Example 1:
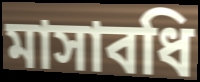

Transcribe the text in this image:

মাসাবধি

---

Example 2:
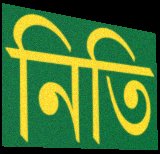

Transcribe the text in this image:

নিতি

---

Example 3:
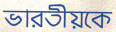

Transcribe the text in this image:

ভারতীয়কে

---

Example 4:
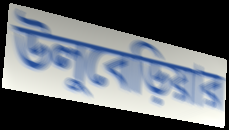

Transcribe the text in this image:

উলুবেড়িয়ার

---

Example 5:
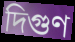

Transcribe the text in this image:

দিগুণ